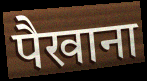
पैखाना